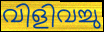
വിളിവച്ചു